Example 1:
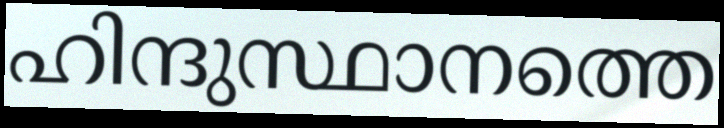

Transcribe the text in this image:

ഹിന്ദുസ്ഥാനത്തെ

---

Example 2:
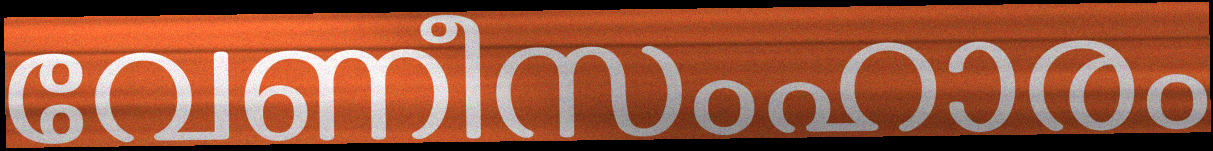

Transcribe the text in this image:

വേണീസംഹാരം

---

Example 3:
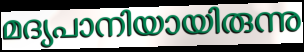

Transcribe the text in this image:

മദ്യപാനിയായിരുന്നു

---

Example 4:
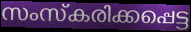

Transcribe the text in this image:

സംസ്‌കരിക്കപ്പെട്ട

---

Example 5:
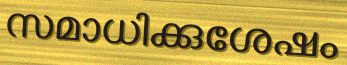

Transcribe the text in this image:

സമാധിക്കുശേഷം